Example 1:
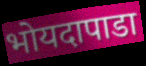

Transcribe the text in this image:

भोयदापाडा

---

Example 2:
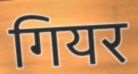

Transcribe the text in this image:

गियर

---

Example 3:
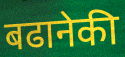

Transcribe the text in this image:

बढानेकी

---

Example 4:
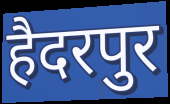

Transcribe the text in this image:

हैदरपुर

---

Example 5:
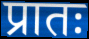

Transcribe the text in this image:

प्रातः